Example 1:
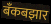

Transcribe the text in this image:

बँकबझार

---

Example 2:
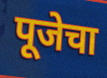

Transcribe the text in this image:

पूजेचा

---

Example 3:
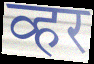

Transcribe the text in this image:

व्हर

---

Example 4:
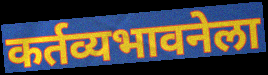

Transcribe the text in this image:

कर्तव्यभावनेला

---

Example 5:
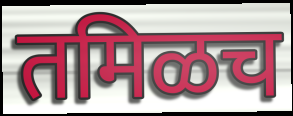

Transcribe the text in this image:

तमिळच